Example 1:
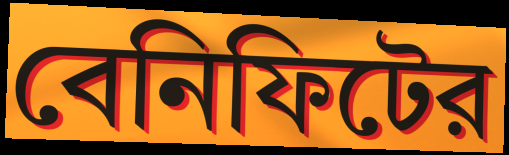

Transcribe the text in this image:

বেনিফিটের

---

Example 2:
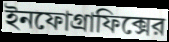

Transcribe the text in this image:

ইনফোগ্রাফিক্সের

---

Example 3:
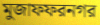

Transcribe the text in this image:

মুজাফফরনগর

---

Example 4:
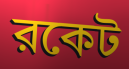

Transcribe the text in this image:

রকেট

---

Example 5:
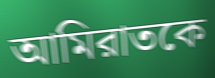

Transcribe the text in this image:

আমিরাতকে